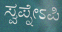
ಸ್ವಪ್ನೇಽಪಿ